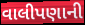
વાલીપણાની